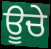
ਊਚੇ